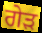
ਗੇੜ